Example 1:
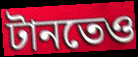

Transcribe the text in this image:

টানতেও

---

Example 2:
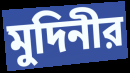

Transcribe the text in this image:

মুদিনীর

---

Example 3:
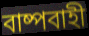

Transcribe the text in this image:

বাষ্পবাহী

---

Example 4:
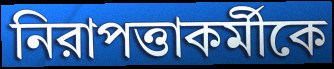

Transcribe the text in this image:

নিরাপত্তাকর্মীকে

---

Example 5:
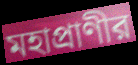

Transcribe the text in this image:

মহাপ্রাণীর